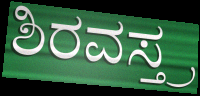
ಶಿರವಸ್ತ್ರ